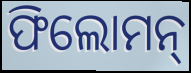
ଫିଲୋମନ୍